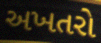
અખતરો